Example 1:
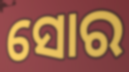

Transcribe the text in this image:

ସୋର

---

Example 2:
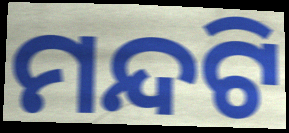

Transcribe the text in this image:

ମନ୍ଦଟି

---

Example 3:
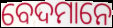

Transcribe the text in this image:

ବେଦମାନେ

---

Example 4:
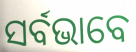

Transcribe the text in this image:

ସର୍ବଭାବେ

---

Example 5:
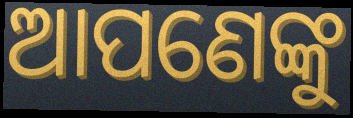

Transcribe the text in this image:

ଆପଣେଙ୍କୁ